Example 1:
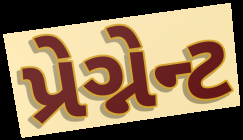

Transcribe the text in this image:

પ્રેગ્નેન્ટ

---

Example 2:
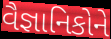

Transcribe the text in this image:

વૈજ્ઞાનિકોને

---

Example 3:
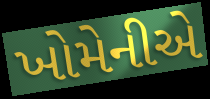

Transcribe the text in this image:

ખોમેનીએ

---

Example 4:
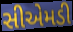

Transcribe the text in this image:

સીએમડી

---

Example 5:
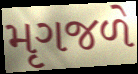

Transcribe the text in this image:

મૃગજળે